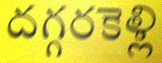
దగ్గరకెళ్లి